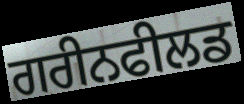
ਗਰੀਨਫੀਲਡ